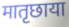
मातृछाया